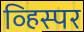
व्हिस्पर